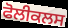
ਫੋਲੀਕਲਸ